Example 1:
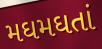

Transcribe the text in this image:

મઘમઘતાં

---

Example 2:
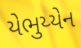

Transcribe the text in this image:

યેભુય્યેન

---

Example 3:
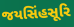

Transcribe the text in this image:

જયસિંહસૂરિ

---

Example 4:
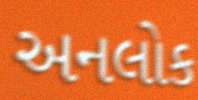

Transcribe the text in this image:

અનલોક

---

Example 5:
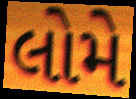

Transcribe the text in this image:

લોમે